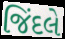
જિંદલે